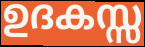
ഉദകസ്സ